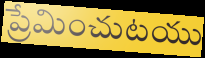
ప్రేమించుటయు